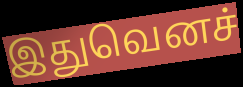
இதுவெனச்